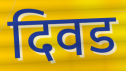
दिवड